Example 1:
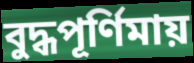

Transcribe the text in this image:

বুদ্ধপূর্ণিমায়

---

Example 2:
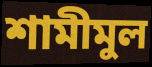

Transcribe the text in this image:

শামীমুল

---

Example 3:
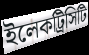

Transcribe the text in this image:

ইলেকট্রিসিটি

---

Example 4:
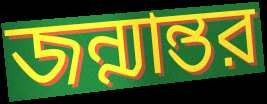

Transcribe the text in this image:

জন্মান্তর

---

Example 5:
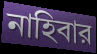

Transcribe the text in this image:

নাহিবার